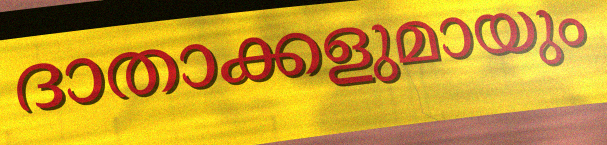
ദാതാക്കളുമായും